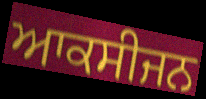
ਆਕਸੀਜਨ